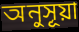
অনুসূয়া